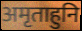
अमृताहुनि